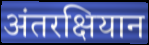
अंतरक्षियान